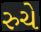
રુચે